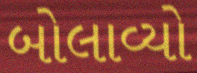
બોલાવ્યો